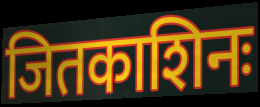
जितकाशिनः